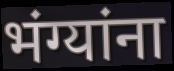
भंग्यांना